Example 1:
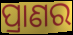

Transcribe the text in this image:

ପ୍ରାଣର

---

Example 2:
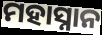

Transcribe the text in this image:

ମହାସ୍ନାନ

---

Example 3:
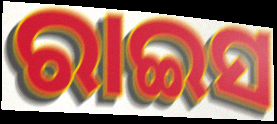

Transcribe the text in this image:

ରାଇସ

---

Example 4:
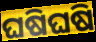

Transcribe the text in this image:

ଘଷିଘଷି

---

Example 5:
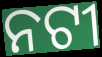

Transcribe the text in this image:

ନଟୀ